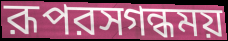
রূপরসগন্ধময়